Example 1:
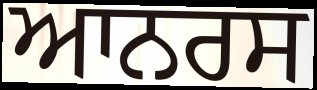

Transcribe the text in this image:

ਆਨਰਸ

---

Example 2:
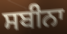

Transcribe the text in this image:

ਸਬੀਨਾ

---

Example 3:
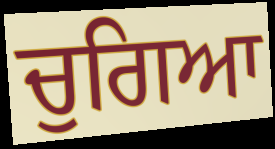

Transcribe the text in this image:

ਚੁਗਿਆ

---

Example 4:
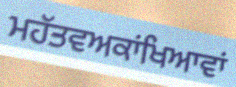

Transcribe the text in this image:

ਮਹੱਤਵਅਕਾਂਖਿਆਵਾਂ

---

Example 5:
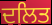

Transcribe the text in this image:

ਦਲਿਤ